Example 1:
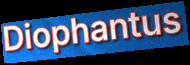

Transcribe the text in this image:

Diophantus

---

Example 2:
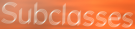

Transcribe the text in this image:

Subclasses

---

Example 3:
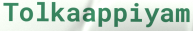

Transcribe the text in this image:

Tolkaappiyam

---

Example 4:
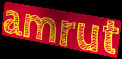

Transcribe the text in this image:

amrut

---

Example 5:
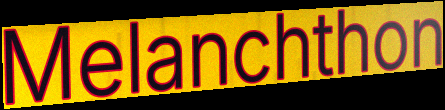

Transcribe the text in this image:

Melanchthon